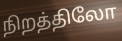
நிறத்திலோ